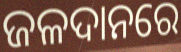
ଜଳଦାନରେ